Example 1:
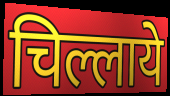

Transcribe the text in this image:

चिल्लाये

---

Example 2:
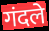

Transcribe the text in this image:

गंदले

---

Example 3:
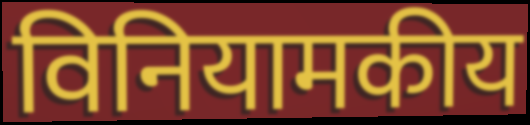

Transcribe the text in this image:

विनियामकीय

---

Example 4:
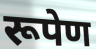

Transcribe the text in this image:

रूपेण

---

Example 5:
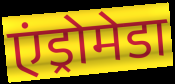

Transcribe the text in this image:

एंड्रोमेडा